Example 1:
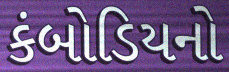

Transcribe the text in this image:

કંબોડિયનો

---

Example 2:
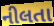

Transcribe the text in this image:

નીલતા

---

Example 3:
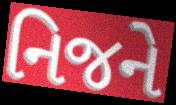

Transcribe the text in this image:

નિજને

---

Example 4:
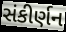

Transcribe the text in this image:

સંકીર્ણન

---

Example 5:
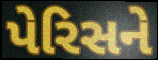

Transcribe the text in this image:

પેરિસને